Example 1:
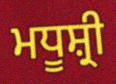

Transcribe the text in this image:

ਮਧੂਸ਼੍ਰੀ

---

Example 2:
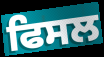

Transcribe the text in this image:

ਫਿਸਲ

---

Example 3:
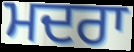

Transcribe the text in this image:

ਮਦਰਾ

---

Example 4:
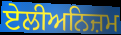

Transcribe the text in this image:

ਏਲੀਅਨਿਜ਼ਮ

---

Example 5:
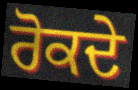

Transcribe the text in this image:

ਰੋਕਦੇ